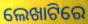
ଲେଖାଟିରେ